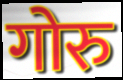
गोरु